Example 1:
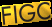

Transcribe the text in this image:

FIGC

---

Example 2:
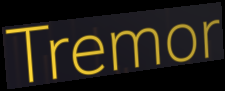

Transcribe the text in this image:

Tremor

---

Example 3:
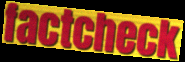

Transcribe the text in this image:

factcheck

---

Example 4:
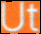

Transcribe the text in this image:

Ut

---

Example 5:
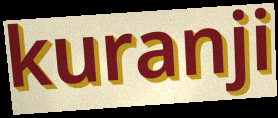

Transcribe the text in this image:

kuranji